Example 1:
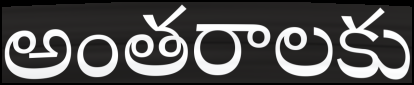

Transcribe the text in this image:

అంతరాలకు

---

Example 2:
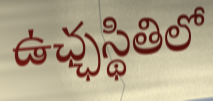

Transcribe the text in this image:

ఉఛ్ఛస్థితిలో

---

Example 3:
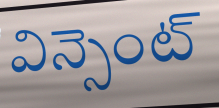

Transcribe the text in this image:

విన్సెంట్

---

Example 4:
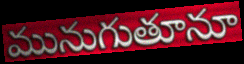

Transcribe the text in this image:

మునుగుతూనూ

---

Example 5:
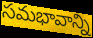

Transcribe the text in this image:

సమభావాన్ని